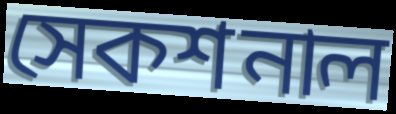
সেকশনাল